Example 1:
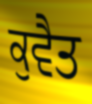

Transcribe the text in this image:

ਕੁਵੈਤ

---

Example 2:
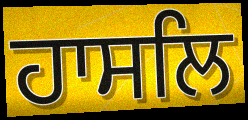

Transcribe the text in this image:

ਹਾਸਲਿ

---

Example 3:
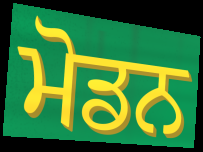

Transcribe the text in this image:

ਮੋਡਨ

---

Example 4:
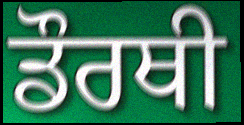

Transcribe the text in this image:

ਡੌਰਥੀ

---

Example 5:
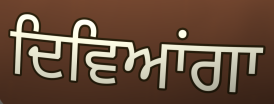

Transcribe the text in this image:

ਦਿਵਿਆਂਗਾ